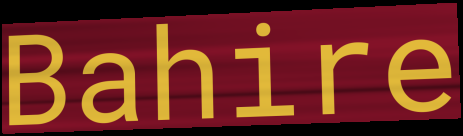
Bahire